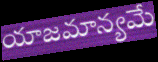
యాజమాన్యమే